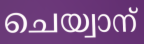
ചെയ്വാന്